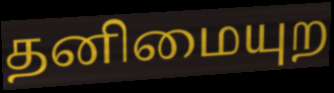
தனிமையுற